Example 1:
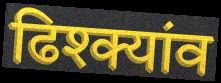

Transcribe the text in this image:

ढिश्क्यांव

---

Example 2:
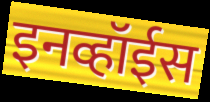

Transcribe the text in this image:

इनव्हॉईस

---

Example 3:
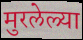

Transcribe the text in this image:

मुरलेल्या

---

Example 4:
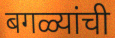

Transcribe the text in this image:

बगळ्यांची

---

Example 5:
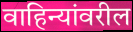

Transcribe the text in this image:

वाहिन्यांवरील